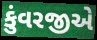
કુંવરજીએ